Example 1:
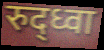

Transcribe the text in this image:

रुद्ध्वा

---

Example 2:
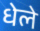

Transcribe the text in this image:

धेले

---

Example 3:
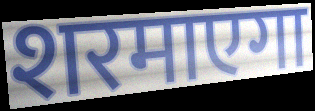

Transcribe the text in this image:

शरमाएगा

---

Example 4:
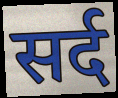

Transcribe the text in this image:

सर्द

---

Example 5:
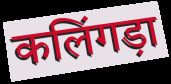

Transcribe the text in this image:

कलिंगड़ा